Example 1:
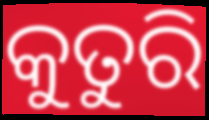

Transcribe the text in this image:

କୁତୁରି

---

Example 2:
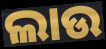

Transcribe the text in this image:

ଲାଉ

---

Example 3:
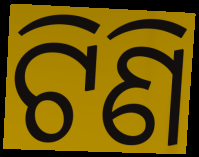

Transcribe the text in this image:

ଟିଣି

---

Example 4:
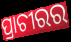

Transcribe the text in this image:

ପ୍ରାଚୀରର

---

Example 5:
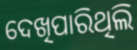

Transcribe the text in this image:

ଦେଖିପାରିଥିଲି